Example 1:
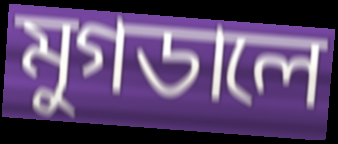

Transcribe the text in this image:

মুগডালে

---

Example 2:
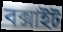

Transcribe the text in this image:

বক্সাইট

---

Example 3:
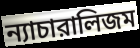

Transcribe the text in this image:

ন্যাচারালিজম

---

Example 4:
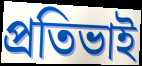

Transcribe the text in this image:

প্রতিভাই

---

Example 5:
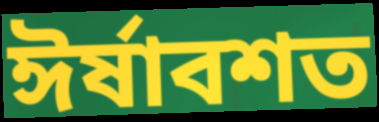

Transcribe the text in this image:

ঈর্ষাবশত